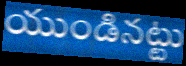
యుండినట్టు